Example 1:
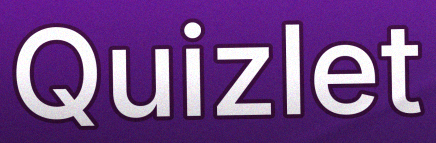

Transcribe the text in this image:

Quizlet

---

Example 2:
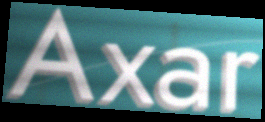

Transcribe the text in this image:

Axar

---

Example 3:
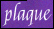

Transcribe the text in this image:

plaque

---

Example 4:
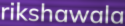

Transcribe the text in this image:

rikshawala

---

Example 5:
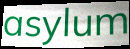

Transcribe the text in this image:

asylum